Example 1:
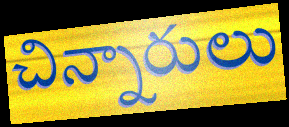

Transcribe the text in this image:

చిన్నారులు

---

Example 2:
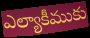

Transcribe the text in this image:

ఎల్యాకీముకు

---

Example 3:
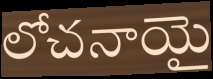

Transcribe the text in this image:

లోచనాయై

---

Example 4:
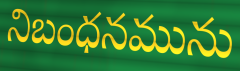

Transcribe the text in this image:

నిబంధనమును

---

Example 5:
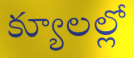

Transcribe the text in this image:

క్యూలల్లో